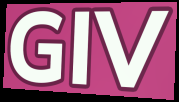
GIV